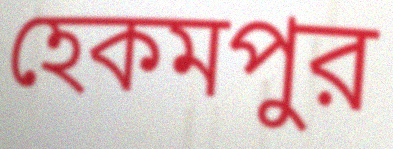
হেকমপুর